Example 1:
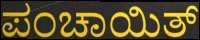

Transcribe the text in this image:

ಪಂಚಾಯಿತ್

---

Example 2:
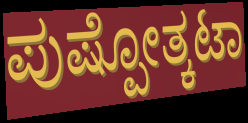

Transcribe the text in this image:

ಪುಷ್ಪೋತ್ಕಟಾ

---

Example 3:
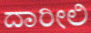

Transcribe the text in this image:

ದಾರೀಲಿ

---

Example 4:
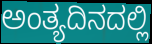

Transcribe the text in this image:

ಅಂತ್ಯದಿನದಲ್ಲಿ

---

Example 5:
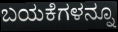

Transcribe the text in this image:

ಬಯಕೆಗಳನ್ನೂ